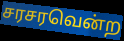
சரசரவென்ற